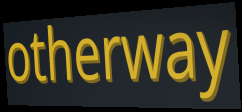
otherway